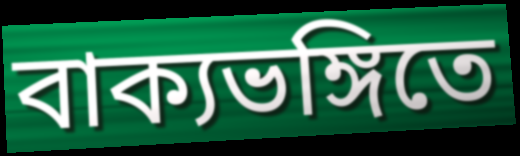
বাক্যভঙ্গিতে